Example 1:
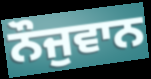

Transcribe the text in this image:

ਨੌਜੁਵਾਨ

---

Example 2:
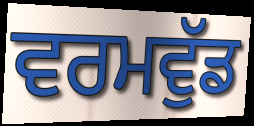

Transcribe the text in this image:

ਵਰਮਵੁੱਡ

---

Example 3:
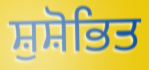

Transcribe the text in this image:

ਸ਼ੁਸ਼ੋਭਿਤ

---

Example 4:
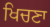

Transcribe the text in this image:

ਖਿਚਣਾ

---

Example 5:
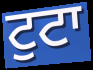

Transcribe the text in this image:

ਟੁਟਾ